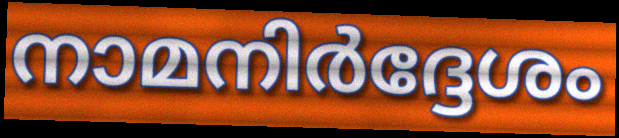
നാമനിർദ്ദേശം